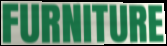
FURNITURE